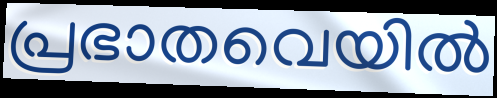
പ്രഭാതവെയിൽ